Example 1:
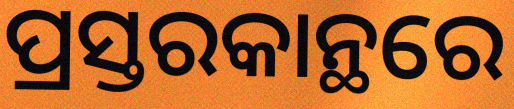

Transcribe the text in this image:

ପ୍ରସ୍ତରକାନ୍ଥରେ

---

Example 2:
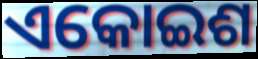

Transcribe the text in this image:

ଏକୋଇଶ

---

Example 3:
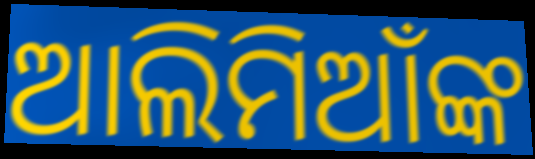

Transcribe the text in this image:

ଆଲିମିଆଁଙ୍କ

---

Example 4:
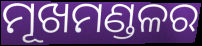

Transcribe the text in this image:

ମୂଖମଣ୍ଡଳର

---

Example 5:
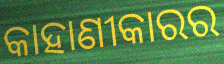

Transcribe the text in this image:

କାହାଣୀକାରର